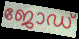
ജോഡ്